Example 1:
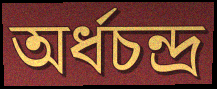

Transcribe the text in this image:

অৰ্ধচন্দ্ৰ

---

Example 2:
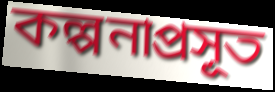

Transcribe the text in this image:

কল্পনাপ্ৰসূত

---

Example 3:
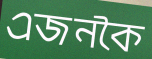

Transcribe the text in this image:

এজনকৈ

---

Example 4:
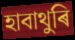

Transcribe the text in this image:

হাবাথুৰি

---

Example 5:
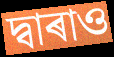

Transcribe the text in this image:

দ্বাৰাও